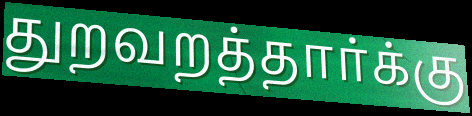
துறவறத்தார்க்கு